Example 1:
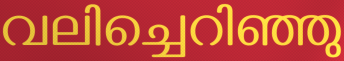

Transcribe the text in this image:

വലിച്ചെറിഞ്ഞു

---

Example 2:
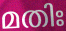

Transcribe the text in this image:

മതിഃ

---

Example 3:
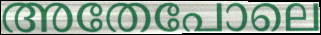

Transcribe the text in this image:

അതേപോലെ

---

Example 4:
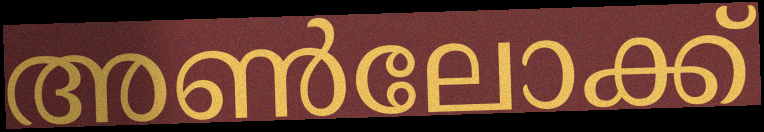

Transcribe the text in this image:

അൺലോക്ക്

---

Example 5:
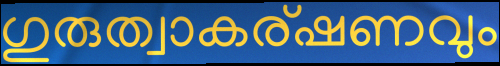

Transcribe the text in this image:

ഗുരുത്വാകര്ഷണവും